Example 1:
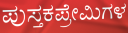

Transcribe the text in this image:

ಪುಸ್ತಕಪ್ರೇಮಿಗಳ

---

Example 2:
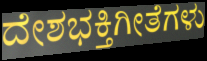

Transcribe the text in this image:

ದೇಶಭಕ್ತಿಗೀತೆಗಳು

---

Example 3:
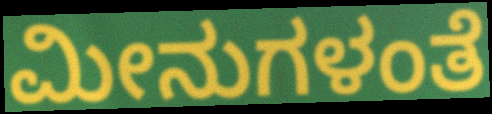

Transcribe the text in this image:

ಮೀನುಗಳಂತೆ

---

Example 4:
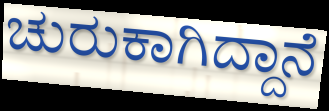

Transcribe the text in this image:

ಚುರುಕಾಗಿದ್ದಾನೆ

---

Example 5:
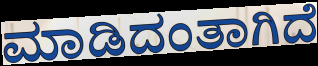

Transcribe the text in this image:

ಮಾಡಿದಂತಾಗಿದೆ